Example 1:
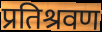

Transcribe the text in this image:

प्रतिश्रवण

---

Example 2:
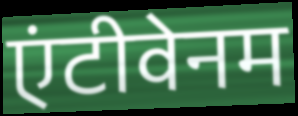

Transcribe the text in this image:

एंटीवेनम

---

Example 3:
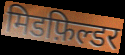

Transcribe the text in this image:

मिडफ़िल्डर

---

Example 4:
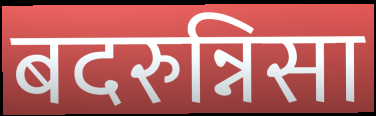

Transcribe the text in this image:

बदरुन्निसा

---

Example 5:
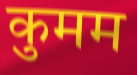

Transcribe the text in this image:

कुमम